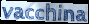
vacchina